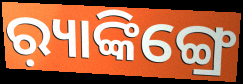
ର଼୍ୟାଙ୍କିଙ୍ଗ୍ରେ